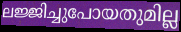
ലജ്ജിച്ചുപോയതുമില്ല